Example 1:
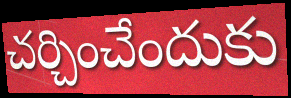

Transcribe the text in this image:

చర్చించేందుకు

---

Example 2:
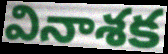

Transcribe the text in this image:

వినాశక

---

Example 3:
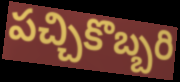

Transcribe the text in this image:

పచ్చికొబ్బరి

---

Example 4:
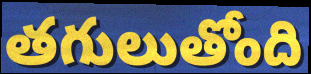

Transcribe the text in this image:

తగులుతోంది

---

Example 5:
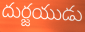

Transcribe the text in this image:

దుర్జయుడు